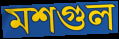
মশগুল